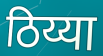
ठिय्या